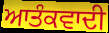
ਆਤੰਕਵਾਦੀ